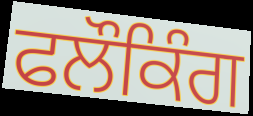
ਫਲੌਕਿੰਗ